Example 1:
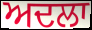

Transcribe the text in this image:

ਅਦਲਾ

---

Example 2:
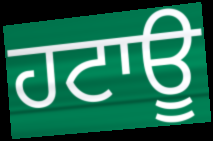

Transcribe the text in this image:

ਹਟਾਊ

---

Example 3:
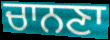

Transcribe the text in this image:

ਚਾਨਣਾ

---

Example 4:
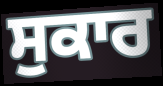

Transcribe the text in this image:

ਸੁਕਾਰ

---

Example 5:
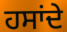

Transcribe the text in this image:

ਹਸਾਂਦੇ